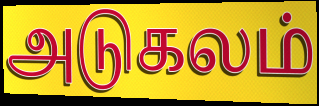
அடுகலம்